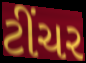
ટીંચર